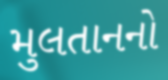
મુલતાનનો